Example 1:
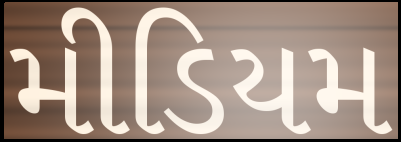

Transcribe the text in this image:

મીડિયમ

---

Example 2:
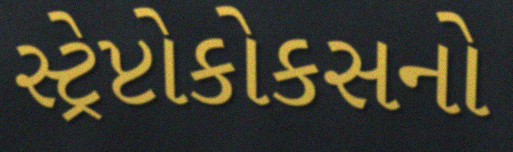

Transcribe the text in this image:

સ્ટ્રેપ્ટોકોકસનો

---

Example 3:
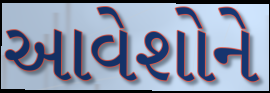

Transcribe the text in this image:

આવેશોને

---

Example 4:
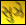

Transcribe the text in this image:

સુઝે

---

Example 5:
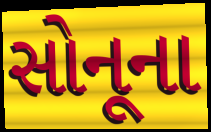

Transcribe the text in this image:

સોનૂના